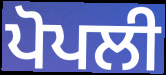
ਪੋਪਲੀ